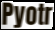
Pyotr